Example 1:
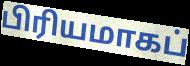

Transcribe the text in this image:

பிரியமாகப்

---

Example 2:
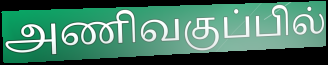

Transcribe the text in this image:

அணிவகுப்பில்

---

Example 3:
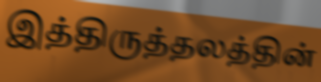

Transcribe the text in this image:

இத்திருத்தலத்தின்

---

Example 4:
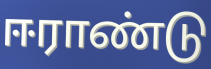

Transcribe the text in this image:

ஈராண்டு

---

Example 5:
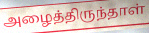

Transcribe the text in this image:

அழைத்திருந்தாள்